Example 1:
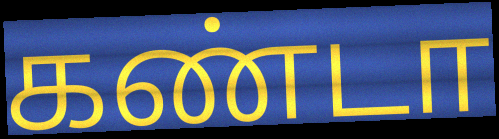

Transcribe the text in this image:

கண்டா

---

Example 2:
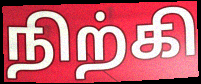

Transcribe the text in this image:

நிற்கி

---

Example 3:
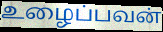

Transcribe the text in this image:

உழைப்பவன்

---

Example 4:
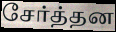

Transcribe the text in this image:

சேர்த்தன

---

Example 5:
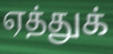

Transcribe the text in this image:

ஏத்துக்